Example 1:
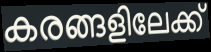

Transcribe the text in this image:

കരങ്ങളിലേക്ക്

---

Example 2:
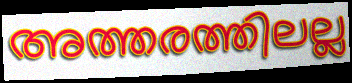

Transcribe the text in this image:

അത്തരത്തിലല്ല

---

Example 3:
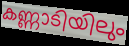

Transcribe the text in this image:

കണ്ണാടിയിലും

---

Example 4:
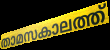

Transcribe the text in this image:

താമസകാലത്ത്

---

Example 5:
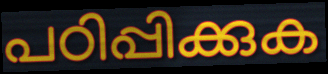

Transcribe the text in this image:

പഠിപ്പിക്കുക